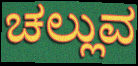
ಚಲ್ಲುವ